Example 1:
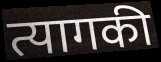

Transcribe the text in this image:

त्यागकी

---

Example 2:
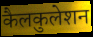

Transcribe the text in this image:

कैलकुलेशन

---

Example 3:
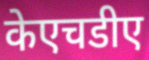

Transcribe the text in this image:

केएचडीए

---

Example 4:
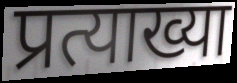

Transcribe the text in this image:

प्रत्याख्या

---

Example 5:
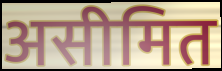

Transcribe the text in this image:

असीमित